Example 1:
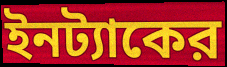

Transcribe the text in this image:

ইনট্যাকের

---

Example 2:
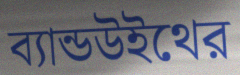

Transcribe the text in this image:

ব্যান্ডউইথের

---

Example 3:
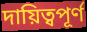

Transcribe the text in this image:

দায়িত্বপূর্ণ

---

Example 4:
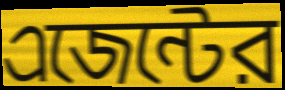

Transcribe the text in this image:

এজেন্টের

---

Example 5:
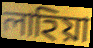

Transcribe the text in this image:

লাহিয়া